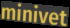
minivet